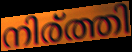
നിര്ത്തി